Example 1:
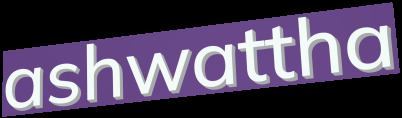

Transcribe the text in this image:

ashwattha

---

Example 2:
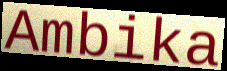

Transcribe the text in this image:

Ambika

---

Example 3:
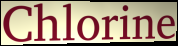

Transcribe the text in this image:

Chlorine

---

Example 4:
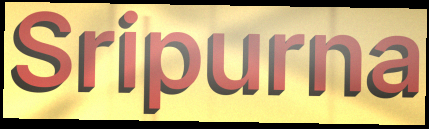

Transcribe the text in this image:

Sripurna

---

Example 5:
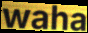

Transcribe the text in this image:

waha